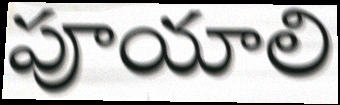
పూయాలి